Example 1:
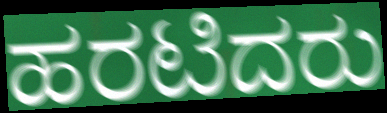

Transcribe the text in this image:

ಹರಟಿದರು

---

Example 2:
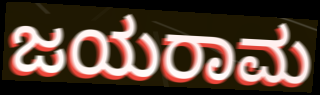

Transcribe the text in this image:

ಜಯರಾಮ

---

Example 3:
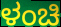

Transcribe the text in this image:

ಳಂಚಿ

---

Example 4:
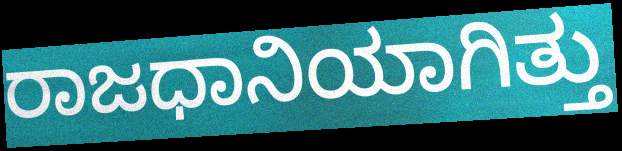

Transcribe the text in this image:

ರಾಜಧಾನಿಯಾಗಿತ್ತು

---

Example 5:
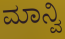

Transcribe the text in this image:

ಮಾನ್ವಿ